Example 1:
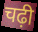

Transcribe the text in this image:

चढ़ी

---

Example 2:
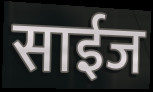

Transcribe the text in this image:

साईज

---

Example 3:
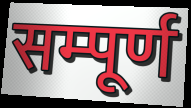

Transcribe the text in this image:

सम्पूर्ण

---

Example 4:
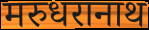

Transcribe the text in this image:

मरुधरानाथ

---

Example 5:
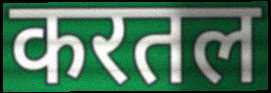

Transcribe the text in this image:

करतल